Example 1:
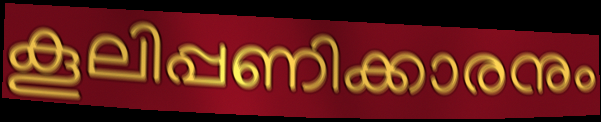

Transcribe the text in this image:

കൂലിപ്പണിക്കാരനും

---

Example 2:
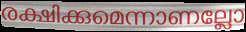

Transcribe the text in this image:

രക്ഷിക്കുമെന്നാണല്ലോ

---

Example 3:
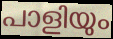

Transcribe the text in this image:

പാളിയും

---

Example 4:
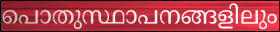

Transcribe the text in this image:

പൊതുസ്ഥാപനങ്ങളിലും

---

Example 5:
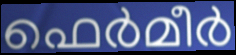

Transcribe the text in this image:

ഫെർമീർ